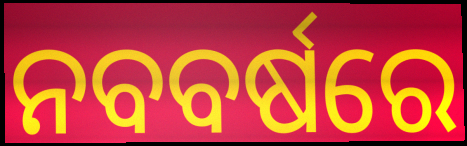
ନବବର୍ଷରେ